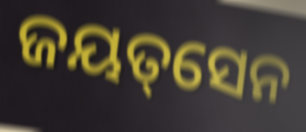
ଜୟତ୍‌ସେନ